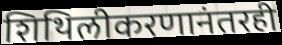
शिथिलीकरणानंतरही